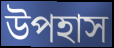
উপহাস